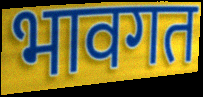
भावगत